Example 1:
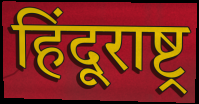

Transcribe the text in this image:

हिंदूराष्ट्र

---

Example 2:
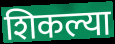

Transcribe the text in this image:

शिकल्या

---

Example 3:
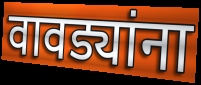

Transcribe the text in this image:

वावड्यांना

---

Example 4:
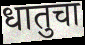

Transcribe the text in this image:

धातुचा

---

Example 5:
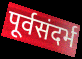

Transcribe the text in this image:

पूर्वसंदर्भ